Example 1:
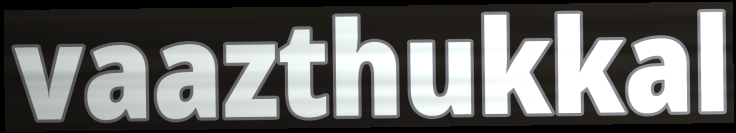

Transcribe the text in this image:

vaazthukkal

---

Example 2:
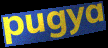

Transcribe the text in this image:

pugya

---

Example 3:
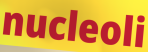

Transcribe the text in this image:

nucleoli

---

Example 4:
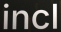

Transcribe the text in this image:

incl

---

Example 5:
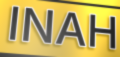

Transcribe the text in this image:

INAH